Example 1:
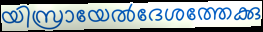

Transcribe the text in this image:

യിസ്രായേൽദേശത്തേക്കു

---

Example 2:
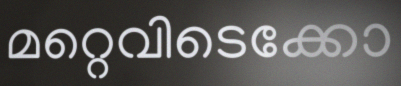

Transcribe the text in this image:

മറ്റെവിടെക്കോ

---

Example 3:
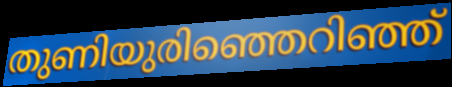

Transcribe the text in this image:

തുണിയുരിഞ്ഞെറിഞ്ഞ്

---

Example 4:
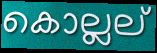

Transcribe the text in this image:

കൊല്ലല്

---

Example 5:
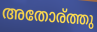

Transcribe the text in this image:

അതോര്ത്തു